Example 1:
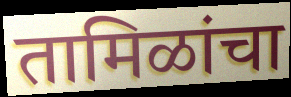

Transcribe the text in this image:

तामिळांचा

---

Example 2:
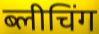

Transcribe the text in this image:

ब्लीचिंग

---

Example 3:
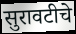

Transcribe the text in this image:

सुरावटीचे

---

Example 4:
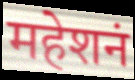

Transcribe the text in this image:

महेशनं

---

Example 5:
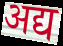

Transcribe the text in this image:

अद्य